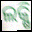
ଲକ୍ଷି